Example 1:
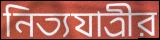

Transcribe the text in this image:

নিত্যযাত্রীর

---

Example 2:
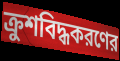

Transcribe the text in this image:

ক্রুশবিদ্ধকরণের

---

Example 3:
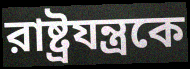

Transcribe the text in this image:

রাষ্ট্রযন্ত্রকে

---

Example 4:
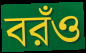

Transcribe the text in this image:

বরঁও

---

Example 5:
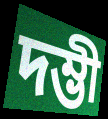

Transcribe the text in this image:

দম্ভী